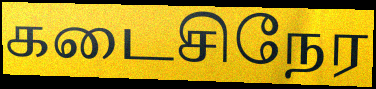
கடைசிநேர